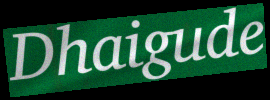
Dhaigude